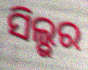
ସିଲ୍ଭର